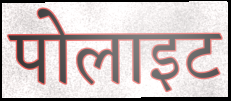
पोलाइट